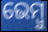
ଭେମ୍ବୁ